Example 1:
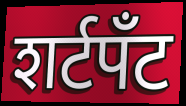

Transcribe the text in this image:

शर्टपॅंट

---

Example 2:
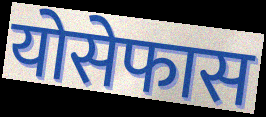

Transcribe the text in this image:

योसेफास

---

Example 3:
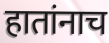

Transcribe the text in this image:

हातांनाच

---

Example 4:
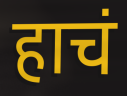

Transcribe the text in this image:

हाचं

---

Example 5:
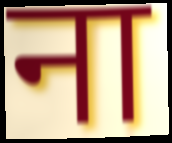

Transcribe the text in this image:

ना